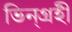
ভিন্গ্রহী